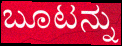
ಬೂಟನ್ನು